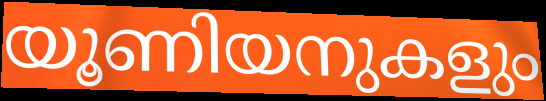
യൂണിയനുകളും